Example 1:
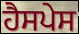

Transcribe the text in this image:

ਹੈਸਪੇਸ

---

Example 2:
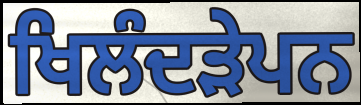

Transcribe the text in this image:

ਖਿਲੰਦੜੇਪਨ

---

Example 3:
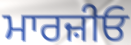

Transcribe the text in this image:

ਮਾਰਜ਼ੀਓ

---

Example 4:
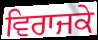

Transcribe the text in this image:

ਵਿਰਾਜਕੇ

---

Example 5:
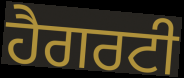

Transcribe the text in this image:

ਹੈਗਰਟੀ